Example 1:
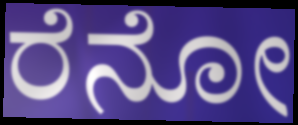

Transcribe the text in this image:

ರೆನೋ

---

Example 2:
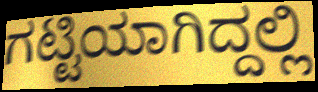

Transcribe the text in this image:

ಗಟ್ಟಿಯಾಗಿದ್ದಲ್ಲಿ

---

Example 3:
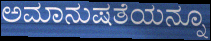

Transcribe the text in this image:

ಅಮಾನುಷತೆಯನ್ನೂ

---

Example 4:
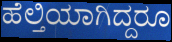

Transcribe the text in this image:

ಹೆಲ್ತಿಯಾಗಿದ್ದರೂ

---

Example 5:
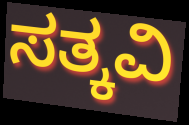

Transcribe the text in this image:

ಸತ್ಕವಿ